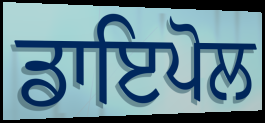
ਡਾਇਪੋਲ